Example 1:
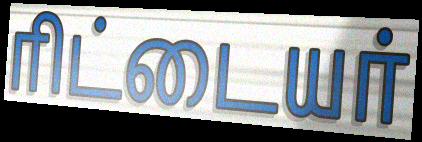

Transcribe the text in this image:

ரிட்டையர்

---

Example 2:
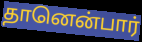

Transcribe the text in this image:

தானென்பார்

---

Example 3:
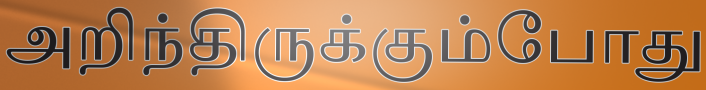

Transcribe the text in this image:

அறிந்திருக்கும்போது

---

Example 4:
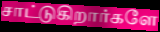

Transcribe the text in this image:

சாட்டுகிறார்களே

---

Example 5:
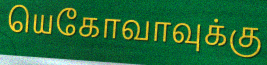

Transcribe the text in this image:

யெகோவாவுக்கு